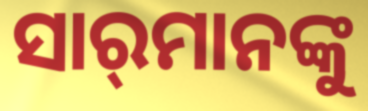
ସାର୍‌ମାନଙ୍କୁ